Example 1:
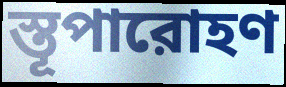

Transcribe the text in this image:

স্তূপারোহণ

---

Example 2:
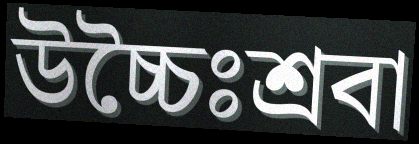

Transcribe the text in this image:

উচ্চৈঃশ্রবা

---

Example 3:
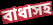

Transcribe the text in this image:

বাধাসহ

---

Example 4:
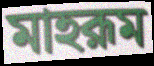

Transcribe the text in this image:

মাহরূম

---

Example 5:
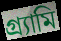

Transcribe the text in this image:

গ্র্যামি